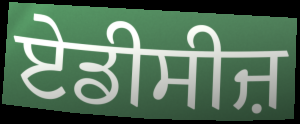
ਏਡੀਸੀਜ਼